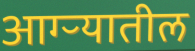
आग्ऱ्यातील